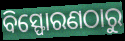
ବିସ୍ଫୋରଣଠାରୁ